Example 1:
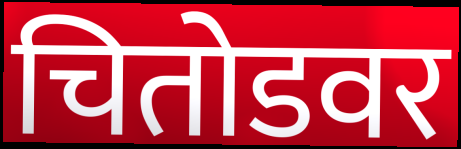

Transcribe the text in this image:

चितोडवर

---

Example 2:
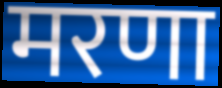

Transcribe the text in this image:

मरणा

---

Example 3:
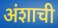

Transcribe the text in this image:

अंशाची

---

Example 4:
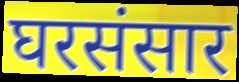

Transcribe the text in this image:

घरसंसार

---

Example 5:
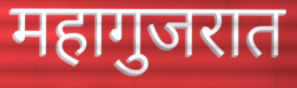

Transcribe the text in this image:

महागुजरात